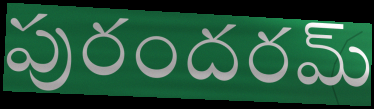
పురందరమ్